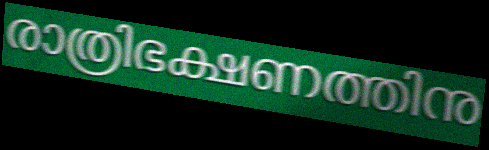
രാത്രിഭക്ഷണത്തിനു